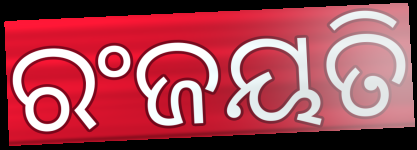
ରଂଜୟତି